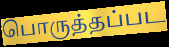
பொருத்தப்பட